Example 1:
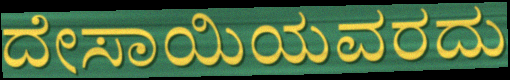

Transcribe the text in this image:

ದೇಸಾಯಿಯವರದು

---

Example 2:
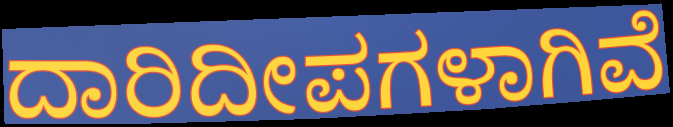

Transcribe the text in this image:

ದಾರಿದೀಪಗಳಾಗಿವೆ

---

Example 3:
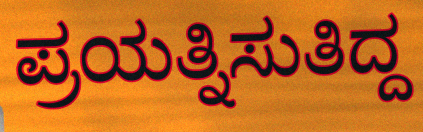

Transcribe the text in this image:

ಪ್ರಯತ್ನಿಸುತಿದ್ದ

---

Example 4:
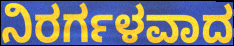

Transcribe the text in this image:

ನಿರರ್ಗಳವಾದ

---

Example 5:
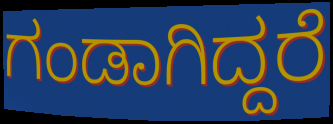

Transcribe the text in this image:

ಗಂಡಾಗಿದ್ದರೆ